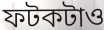
ফটকটাও